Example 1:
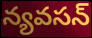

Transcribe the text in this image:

న్యవసన్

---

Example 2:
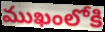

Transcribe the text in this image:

ముఖంలోకి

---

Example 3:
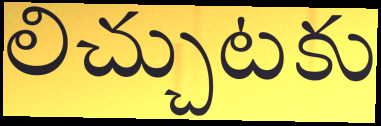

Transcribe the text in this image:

లిచ్చుటకు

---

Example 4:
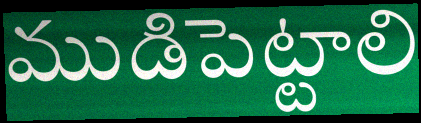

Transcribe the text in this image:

ముడిపెట్టాలి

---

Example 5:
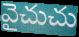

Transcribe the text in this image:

వైచుచు